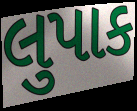
લુપાક